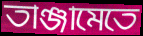
তাঞ্জামেতে